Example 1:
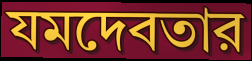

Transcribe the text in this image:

যমদেবতার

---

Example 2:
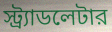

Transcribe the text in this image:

স্ট্র্যাডলেটার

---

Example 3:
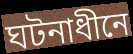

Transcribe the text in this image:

ঘটনাধীনে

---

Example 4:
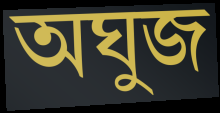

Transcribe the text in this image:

অঘুজ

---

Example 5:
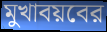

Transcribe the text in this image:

মুখাবয়বের